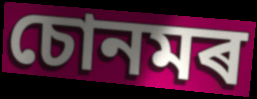
চোনমৰ